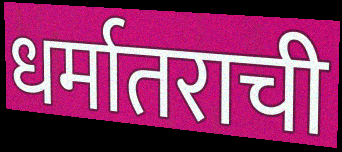
धर्मातराची